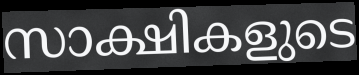
സാക്ഷികളുടെ